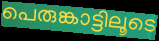
പെരുങ്കാട്ടിലൂടെ